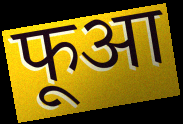
फूआ